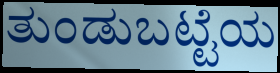
ತುಂಡುಬಟ್ಟೆಯ